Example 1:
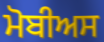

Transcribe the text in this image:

ਮੋਬੀਅਸ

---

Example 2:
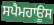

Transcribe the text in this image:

ਸਪੈਮਹਾਊਸ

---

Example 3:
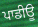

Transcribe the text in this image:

ਪਾਡੀਊ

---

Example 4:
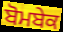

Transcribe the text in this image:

ਬੋਮਬੇਕ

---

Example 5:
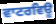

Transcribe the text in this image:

ਵਾਟਰਵਿਊ